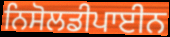
ਨਿਸੋਲਡੀਪਾਈਨ